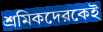
শ্রমিকদেরকেই